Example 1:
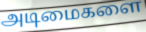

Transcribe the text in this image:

அடிமைகளை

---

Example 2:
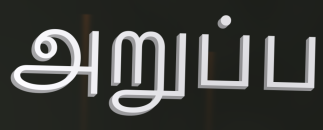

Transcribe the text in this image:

அறுப்ப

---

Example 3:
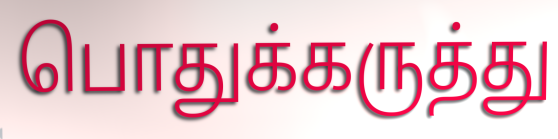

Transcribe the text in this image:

பொதுக்கருத்து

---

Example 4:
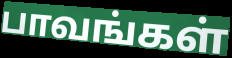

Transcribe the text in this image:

பாவங்கள்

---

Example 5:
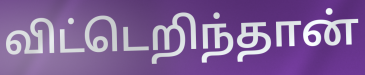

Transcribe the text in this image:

விட்டெறிந்தான்